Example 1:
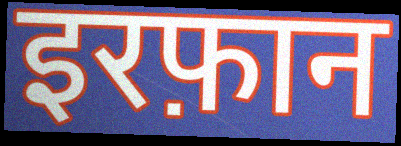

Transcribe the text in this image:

इरफ़ान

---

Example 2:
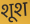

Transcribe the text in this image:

शूश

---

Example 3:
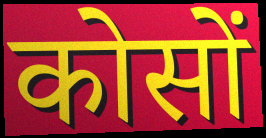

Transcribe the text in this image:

कोसों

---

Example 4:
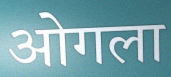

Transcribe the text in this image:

ओगला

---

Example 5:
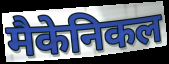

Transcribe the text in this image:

मैकेनिकल